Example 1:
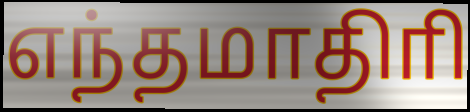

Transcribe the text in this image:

எந்தமாதிரி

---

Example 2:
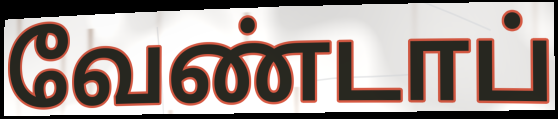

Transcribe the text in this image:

வேண்டாப்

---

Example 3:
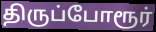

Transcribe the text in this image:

திருப்போரூர்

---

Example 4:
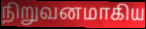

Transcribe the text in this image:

நிறுவனமாகிய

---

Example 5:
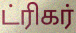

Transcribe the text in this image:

ட்ரிகர்